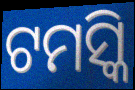
ଟମସ୍କି